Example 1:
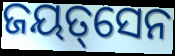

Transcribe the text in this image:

ଜୟତ୍‌ସେନ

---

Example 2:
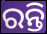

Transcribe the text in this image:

ରନ୍ତି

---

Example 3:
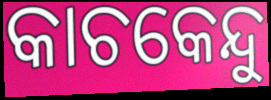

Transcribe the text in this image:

କାଚକେନ୍ଦୁ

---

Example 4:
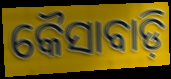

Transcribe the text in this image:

କୈସାବାଡ଼ି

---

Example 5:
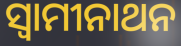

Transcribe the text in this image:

ସ୍ବାମୀନାଥନ